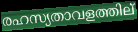
രഹസ്യതാവളത്തില്